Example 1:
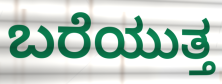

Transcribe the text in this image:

ಬರೆಯುತ್ತ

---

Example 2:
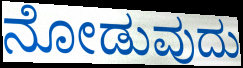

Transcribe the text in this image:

ನೋಡುವುದು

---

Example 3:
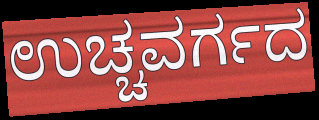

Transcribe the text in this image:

ಉಚ್ಚವರ್ಗದ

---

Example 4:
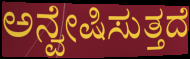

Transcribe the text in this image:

ಅನ್ವೇಷಿಸುತ್ತದೆ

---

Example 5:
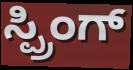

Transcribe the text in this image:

ಸ್ಪ್ರಿಂಗ್